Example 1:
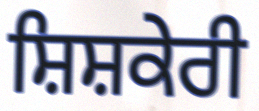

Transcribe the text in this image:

ਸ਼ਿਸ਼ਕੇਰੀ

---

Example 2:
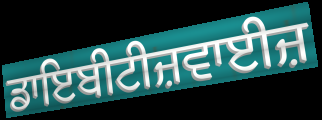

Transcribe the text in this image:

ਡਾਇਬੀਟੀਜ਼ਵਾਈਜ਼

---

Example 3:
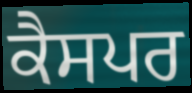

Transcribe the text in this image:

ਕੈਸਪਰ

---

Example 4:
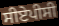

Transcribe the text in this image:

ਸੀਏਪੀਸੀ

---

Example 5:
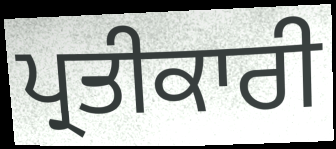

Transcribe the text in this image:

ਪ੍ਰਤੀਕਾਰੀ